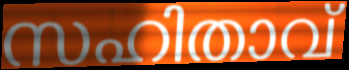
സഹിതാവ്